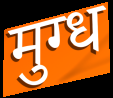
मुग्ध